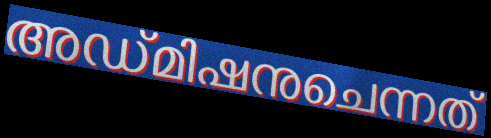
അഡ്മിഷനുചെന്നത്